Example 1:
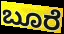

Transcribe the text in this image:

ಬೂರೆ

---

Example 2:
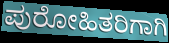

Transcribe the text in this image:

ಪುರೋಹಿತರಿಗಾಗಿ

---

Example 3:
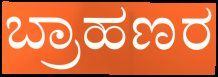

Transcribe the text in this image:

ಬ್ರಾಹಣರ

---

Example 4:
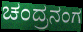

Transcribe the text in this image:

ಚಂದ್ರನಂಗ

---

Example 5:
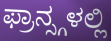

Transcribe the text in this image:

ಫ್ರಾನ್ಸ್ಗಳಲ್ಲಿ